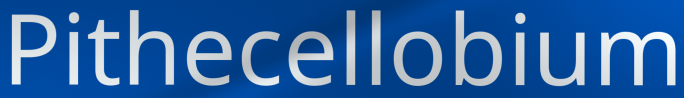
Pithecellobium